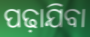
ପଢ଼ାଯିବା